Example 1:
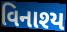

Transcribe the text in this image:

વિનાશ્ય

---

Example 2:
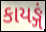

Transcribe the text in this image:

કાયઙ્ગં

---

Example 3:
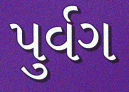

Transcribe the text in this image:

પુર્વગ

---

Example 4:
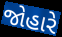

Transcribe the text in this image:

જોહારે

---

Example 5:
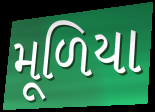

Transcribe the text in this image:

મૂળિયા